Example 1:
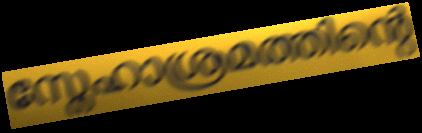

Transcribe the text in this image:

സ്നേഹാശ്രമത്തിന്റെ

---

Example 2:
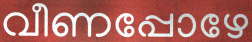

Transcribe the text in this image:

വീണപ്പോഴേ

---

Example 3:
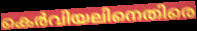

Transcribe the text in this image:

കെർവിയലിനെതിരെ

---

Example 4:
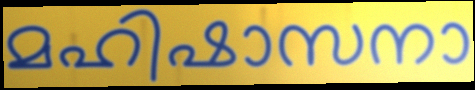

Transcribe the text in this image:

മഹിഷാസനാ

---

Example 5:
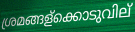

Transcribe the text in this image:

ശ്രമങ്ങള്ക്കൊടുവില്